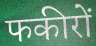
फकीरों